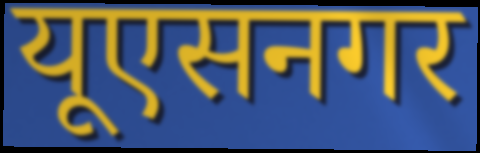
यूएसनगर